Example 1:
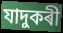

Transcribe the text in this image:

যাদুকৰী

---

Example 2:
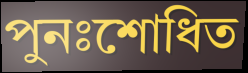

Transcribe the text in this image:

পুনঃশোধিত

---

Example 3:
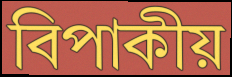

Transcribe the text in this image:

বিপাকীয়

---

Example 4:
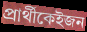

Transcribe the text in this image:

প্ৰাৰ্থীকেইজন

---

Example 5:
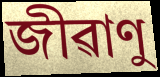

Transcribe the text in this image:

জীৱাণু